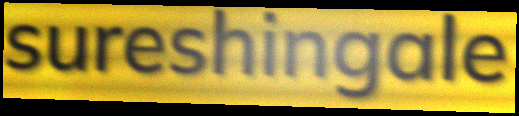
sureshingale